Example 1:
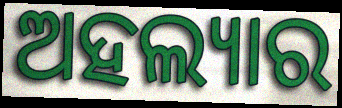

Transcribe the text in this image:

ଅହଲ୍ୟାର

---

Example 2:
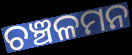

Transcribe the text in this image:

ଚଞ୍ଚଳମନ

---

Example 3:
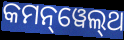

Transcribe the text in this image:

କମନ୍‌ୱେଲ୍‌ଥ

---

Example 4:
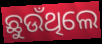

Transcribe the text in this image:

ଛୁଉଁଥିଲେ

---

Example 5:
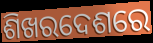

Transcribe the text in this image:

ଶିଖରଦେଶରେ